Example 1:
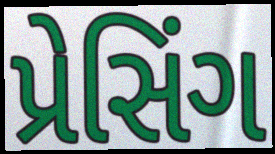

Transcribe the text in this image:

પ્રેસિંગ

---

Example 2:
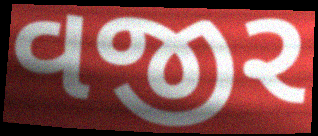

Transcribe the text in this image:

વજીર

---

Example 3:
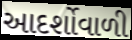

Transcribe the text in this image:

આદર્શોવાળી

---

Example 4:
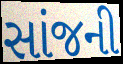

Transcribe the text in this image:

સાંજની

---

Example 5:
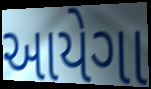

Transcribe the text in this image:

આયેગા